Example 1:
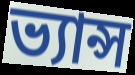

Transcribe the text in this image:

ভ্যান্স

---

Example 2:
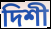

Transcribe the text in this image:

দিশী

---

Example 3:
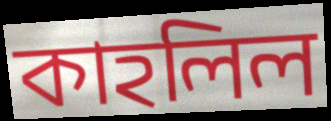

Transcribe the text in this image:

কাহলিল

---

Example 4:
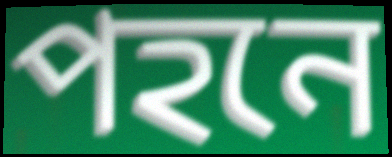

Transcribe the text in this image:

পহনে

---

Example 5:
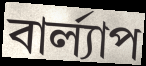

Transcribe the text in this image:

বার্ল্যাপ